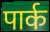
पार्क